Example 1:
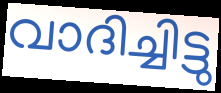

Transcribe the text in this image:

വാദിച്ചിട്ടു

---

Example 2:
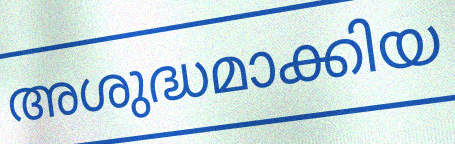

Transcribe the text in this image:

അശുദ്ധമാക്കിയ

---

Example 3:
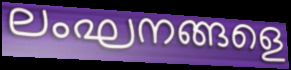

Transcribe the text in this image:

ലംഘനങ്ങളെ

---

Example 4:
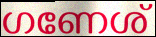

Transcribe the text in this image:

ഗണേശ്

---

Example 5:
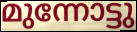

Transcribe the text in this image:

മുന്നോട്ടു